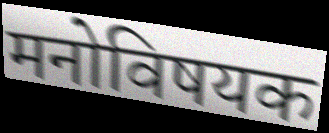
मनोविषयक